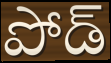
పోడ్